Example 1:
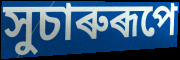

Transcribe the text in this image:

সুচাৰুৰূপে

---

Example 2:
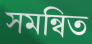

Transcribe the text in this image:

সমন্বিত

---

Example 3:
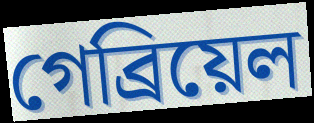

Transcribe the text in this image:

গেব্ৰিয়েল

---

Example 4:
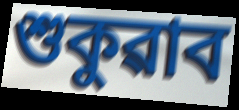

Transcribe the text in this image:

শুকুৱাব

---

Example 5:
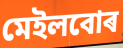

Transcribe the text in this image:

মেইলবোৰ